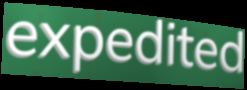
expedited